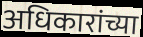
अधिकारांच्या